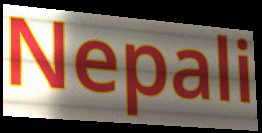
Nepali